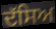
ਦੱਸਿਅ